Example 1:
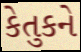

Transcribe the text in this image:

કેતુકને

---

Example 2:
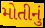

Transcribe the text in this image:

મોતીનું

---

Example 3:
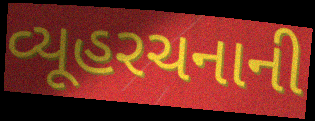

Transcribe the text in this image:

વ્યૂહરચનાની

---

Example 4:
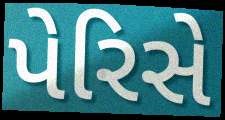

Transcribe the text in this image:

પેરિસે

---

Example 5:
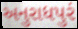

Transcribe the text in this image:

અનુરાધપુરં